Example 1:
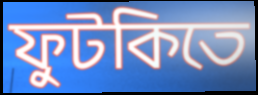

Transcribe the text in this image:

ফুটকিতে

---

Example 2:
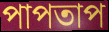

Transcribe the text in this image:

পাপতাপ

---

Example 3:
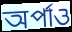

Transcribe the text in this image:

অর্পাও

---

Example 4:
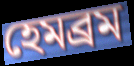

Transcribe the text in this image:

হেমব্রম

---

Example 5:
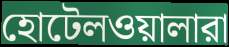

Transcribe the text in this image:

হোটেলওয়ালারা